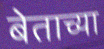
बेताच्या